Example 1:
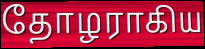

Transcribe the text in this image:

தோழராகிய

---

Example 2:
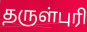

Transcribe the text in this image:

தருள்புரி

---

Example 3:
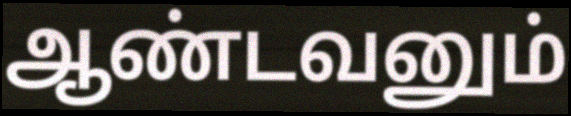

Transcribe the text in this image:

ஆண்டவனும்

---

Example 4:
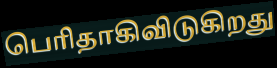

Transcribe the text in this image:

பெரிதாகிவிடுகிறது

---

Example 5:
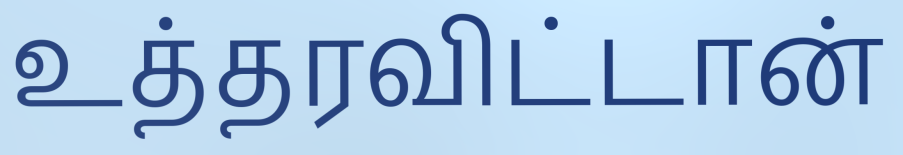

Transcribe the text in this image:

உத்தரவிட்டான்